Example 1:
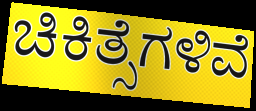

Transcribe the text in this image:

ಚಿಕಿತ್ಸೆಗಳಿವೆ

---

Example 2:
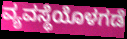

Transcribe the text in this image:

ವ್ಯವಸ್ಥೆಯೊಳಗಡೆ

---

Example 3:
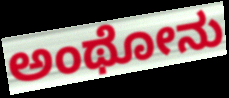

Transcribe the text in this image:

ಅಂಥೋನು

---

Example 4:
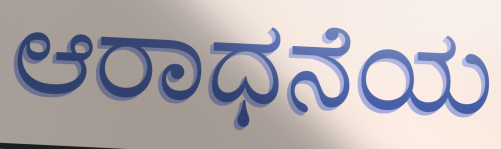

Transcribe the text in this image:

ಆರಾಧನೆಯ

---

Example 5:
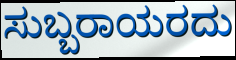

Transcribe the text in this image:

ಸುಬ್ಬರಾಯರದು